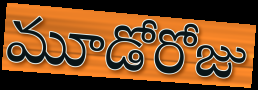
మూడోరోజు